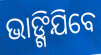
ଭାଙ୍ଗିଯିବେ